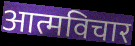
आत्मविचार